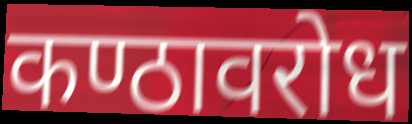
कण्ठावरोध